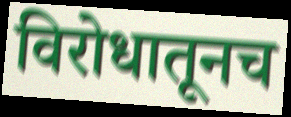
विरोधातूनच